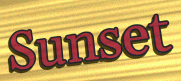
Sunset